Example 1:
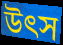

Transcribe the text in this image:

উৎস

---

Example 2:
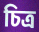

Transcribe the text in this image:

চিত্ৰ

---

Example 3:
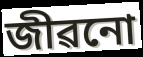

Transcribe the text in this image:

জীৱনো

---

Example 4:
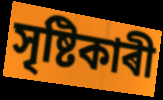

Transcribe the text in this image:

সৃষ্টিকাৰী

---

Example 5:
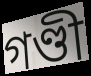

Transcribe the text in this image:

গণ্ডী